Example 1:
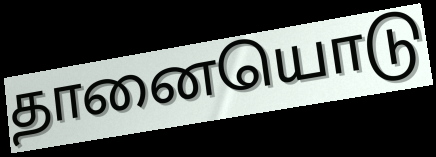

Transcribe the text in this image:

தானையொடு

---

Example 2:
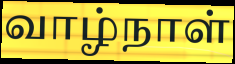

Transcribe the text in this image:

வாழ்நாள்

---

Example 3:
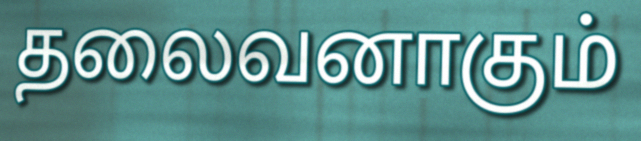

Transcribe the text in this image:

தலைவனாகும்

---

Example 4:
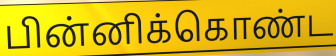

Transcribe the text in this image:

பின்னிக்கொண்ட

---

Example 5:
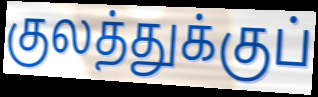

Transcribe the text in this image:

குலத்துக்குப்